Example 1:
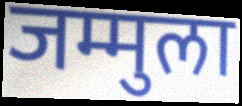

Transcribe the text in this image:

जम्मुला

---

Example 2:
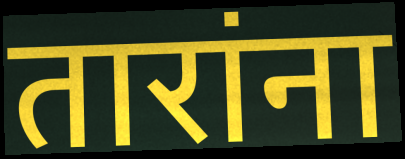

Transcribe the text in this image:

तारांना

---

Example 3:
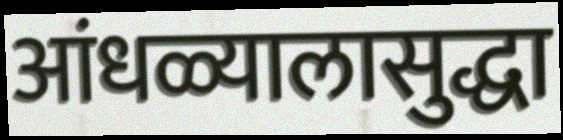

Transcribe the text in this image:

आंधळ्यालासुद्धा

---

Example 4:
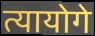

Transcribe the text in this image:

त्यायोगे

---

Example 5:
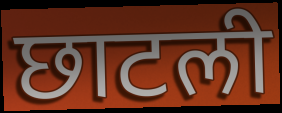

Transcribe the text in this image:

छाटली